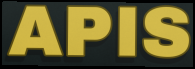
APIS